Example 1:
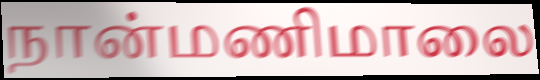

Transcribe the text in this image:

நான்மணிமாலை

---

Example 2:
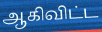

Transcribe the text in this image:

ஆகிவிட்ட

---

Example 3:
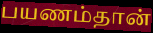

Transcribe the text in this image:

பயணம்தான்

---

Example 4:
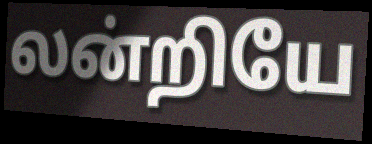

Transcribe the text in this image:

லன்றியே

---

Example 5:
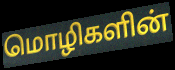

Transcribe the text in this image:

மொழிகளின்